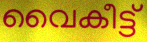
വൈകീട്ട്